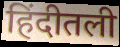
हिंदीतली